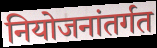
नियोजनांतर्गत